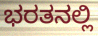
ಭರತನಲ್ಲಿ